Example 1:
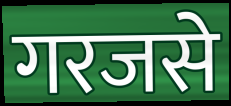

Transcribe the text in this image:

गरजसे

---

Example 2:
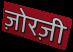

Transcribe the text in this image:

ज़ोरज़ी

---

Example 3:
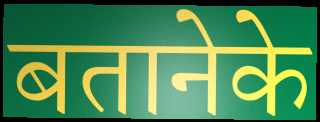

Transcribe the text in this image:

बतानेके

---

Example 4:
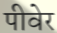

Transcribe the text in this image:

पीवेर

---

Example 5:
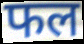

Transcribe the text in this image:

फल